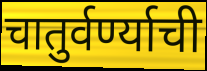
चातुर्वर्ण्याची